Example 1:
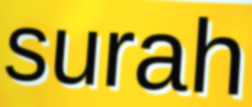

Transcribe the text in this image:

surah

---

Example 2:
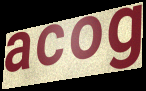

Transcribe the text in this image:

acog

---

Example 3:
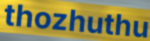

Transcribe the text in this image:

thozhuthu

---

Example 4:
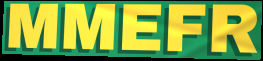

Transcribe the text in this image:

MMEFR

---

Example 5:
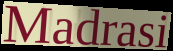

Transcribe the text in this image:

Madrasi